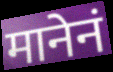
मानेनं